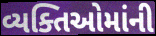
વ્યક્તિઓમાંની